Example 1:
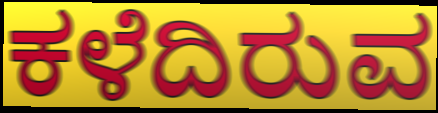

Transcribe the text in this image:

ಕಳೆದಿರುವ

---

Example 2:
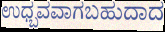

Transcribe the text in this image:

ಉಧ್ಬವವಾಗಬಹುದಾದ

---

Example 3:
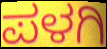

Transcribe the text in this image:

ಪಳಗಿ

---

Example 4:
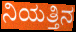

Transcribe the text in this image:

ನಿಯತ್ತಿನ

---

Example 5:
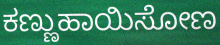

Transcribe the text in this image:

ಕಣ್ಣುಹಾಯಿಸೋಣ